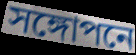
সঙ্গোপনে